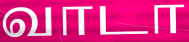
வாடா